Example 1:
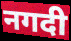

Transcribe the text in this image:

नगदी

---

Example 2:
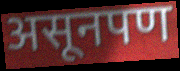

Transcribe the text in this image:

असूनपण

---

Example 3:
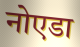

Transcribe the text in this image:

नोएडा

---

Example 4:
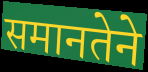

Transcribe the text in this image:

समानतेने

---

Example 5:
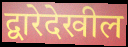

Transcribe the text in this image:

द्वारेदेखील